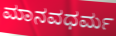
ಮಾನವಧರ್ಮ